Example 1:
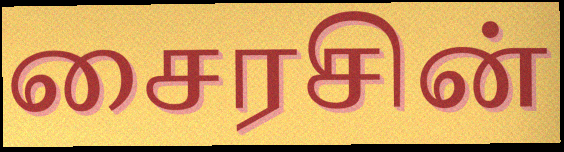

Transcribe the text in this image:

சைரசின்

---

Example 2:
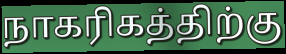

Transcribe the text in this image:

நாகரிகத்திற்கு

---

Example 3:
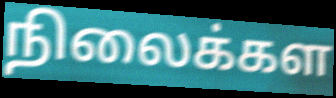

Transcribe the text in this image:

நிலைக்கள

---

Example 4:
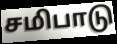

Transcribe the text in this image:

சமிபாடு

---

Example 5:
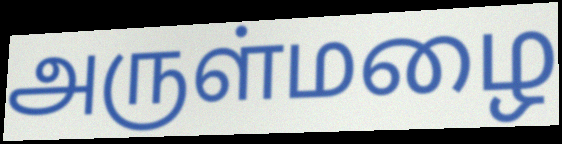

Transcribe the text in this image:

அருள்மழை